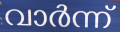
വാർന്ന്